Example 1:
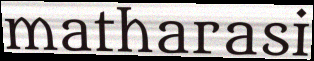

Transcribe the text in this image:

matharasi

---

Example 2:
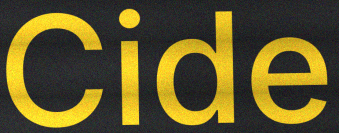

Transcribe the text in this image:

Cide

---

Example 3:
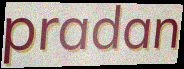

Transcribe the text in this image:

pradan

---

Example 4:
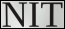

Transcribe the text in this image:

NIT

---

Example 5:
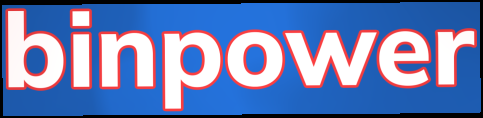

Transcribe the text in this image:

binpower